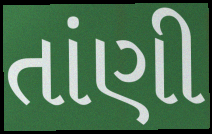
તાંણી